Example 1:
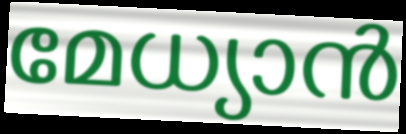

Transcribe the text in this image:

മേധ്യാൻ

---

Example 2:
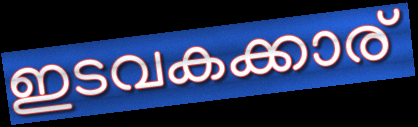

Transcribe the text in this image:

ഇടവകക്കാര്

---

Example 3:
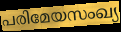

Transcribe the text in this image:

പരിമേയസംഖ്യ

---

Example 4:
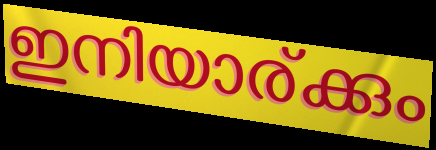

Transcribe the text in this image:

ഇനിയാര്ക്കും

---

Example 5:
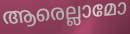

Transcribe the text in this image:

ആരെല്ലാമോ